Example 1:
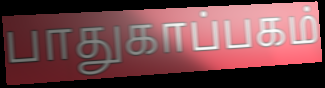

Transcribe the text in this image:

பாதுகாப்பகம்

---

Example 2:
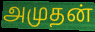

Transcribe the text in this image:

அமுதன்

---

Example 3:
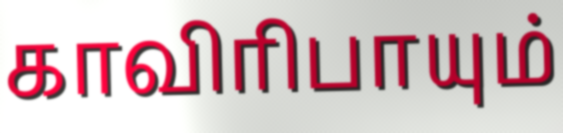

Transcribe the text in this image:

காவிரிபாயும்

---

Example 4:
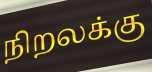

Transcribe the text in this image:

நிறலக்கு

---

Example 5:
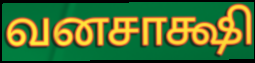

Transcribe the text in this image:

வனசாக்ஷி